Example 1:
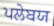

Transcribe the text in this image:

ਪਲੇਬਯ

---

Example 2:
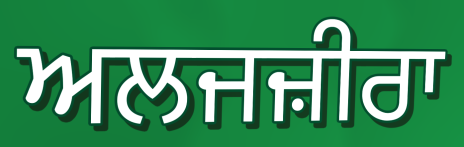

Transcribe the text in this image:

ਅਲਜਜ਼ੀਰਾ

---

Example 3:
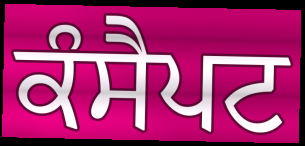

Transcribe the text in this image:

ਕੰਸੈਪਟ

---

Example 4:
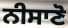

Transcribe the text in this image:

ਨੀਸਾਣੋ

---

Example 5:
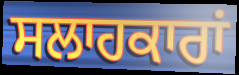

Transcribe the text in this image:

ਸਲਾਹਕਾਰਾਂ